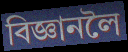
বিজ্ঞানলৈ